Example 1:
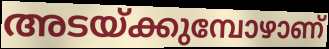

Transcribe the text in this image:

അടയ്ക്കുമ്പോഴാണ്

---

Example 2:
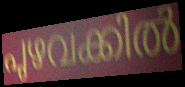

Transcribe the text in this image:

പുഴവക്കിൽ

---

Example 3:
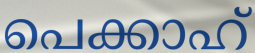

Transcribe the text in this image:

പെക്കാഹ്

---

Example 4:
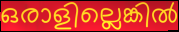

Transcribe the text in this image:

ഒരാളില്ലെങ്കിൽ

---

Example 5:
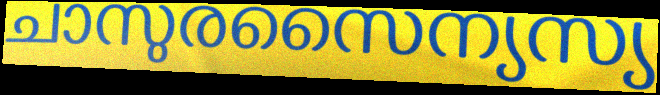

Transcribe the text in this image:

ചാസുരസൈന്യസ്യ